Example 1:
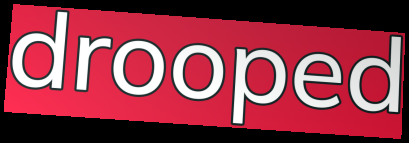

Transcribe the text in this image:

drooped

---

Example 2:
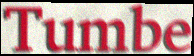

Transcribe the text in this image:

Tumbe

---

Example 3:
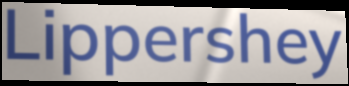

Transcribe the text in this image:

Lippershey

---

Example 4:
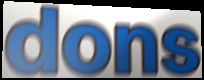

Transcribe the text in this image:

dons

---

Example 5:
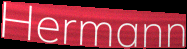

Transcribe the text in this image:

Hermann